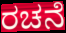
ರಚನೆ